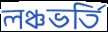
লঞ্চভর্তি